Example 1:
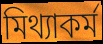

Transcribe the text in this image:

মিথ্যাকর্ম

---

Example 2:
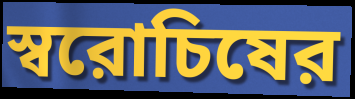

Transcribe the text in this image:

স্বরোচিষের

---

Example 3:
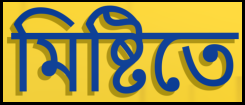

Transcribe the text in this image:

মিষ্টিতে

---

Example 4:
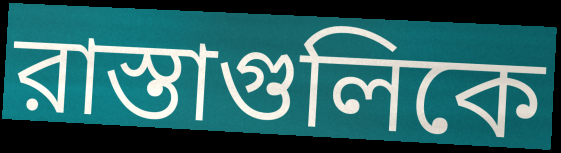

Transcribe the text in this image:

রাস্তাগুলিকে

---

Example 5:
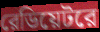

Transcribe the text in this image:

রেডিয়েটরে